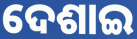
ଦେଶାଇ